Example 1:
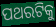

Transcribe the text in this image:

ପଥରଟିକୁ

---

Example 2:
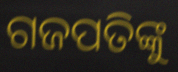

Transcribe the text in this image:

ଗଜପତିଙ୍କୁ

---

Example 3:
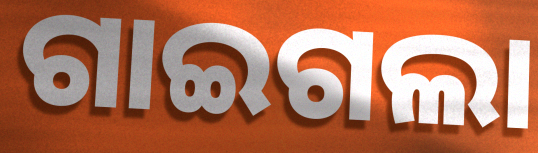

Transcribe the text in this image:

ଗାଇଗଲା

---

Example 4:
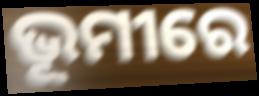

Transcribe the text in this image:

ଭୂମୀରେ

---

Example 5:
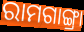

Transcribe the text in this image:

ରାମଗାଙ୍ଗ୍ରା